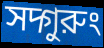
সদ্গুরুং